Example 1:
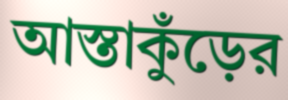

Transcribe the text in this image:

আস্তাকুঁড়ের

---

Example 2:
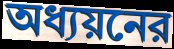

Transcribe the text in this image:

অধ্যয়নের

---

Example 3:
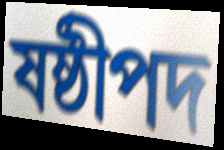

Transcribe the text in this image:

ষষ্ঠীপদ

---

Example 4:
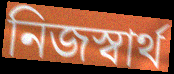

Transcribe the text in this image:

নিজস্বার্থ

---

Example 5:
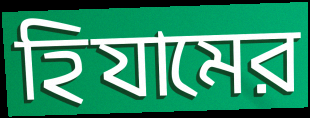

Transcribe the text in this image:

হিযামের